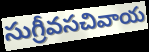
సుగ్రీవసచివాయ